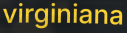
virginiana